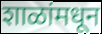
शाळांमधून